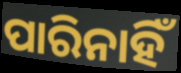
ପାରିନାହିଁ